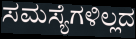
ಸಮಸ್ಯೆಗಳಿಲ್ಲದ